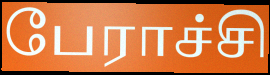
பேராச்சி